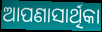
ଆପଣାସାର୍ଥିକା